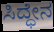
ಸಿದ್ಧೇನ